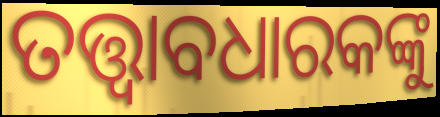
ତତ୍ତ୍ଵାବଧାରକଙ୍କୁ